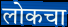
लोकचा